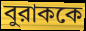
বুরাককে